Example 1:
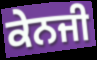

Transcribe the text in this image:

ਕੇਨਜੀ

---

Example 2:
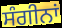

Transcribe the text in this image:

ਸੰਗੀਨਾਂ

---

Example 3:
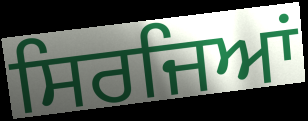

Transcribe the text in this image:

ਸਿਰਜਿਆਂ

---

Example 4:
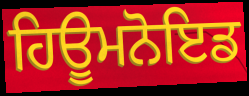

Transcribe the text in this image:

ਹਿਊਮਨੋਇਡ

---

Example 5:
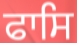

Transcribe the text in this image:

ਫਾਸਿ